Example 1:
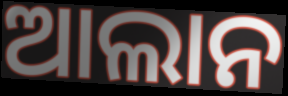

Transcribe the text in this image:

ଆଲାନ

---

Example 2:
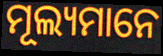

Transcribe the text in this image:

ମୂଲ୍ୟମାନେ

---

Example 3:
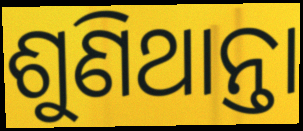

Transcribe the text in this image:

ଶୁଣିଥାନ୍ତା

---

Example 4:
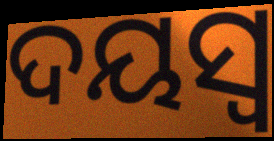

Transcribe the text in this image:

ଦୟସ୍ଵ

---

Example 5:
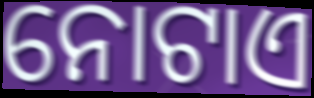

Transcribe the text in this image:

ନୋଟାଏ